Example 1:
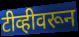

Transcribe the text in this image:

टीव्हीवरून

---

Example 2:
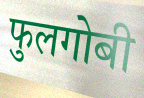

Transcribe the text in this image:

फुलगोबी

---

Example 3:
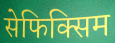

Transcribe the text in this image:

सेफिक्सिम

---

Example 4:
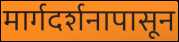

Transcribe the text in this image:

मार्गदर्शनापासून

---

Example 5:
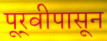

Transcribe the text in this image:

पूर्वीपासून